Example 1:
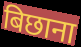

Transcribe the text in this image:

बिछाना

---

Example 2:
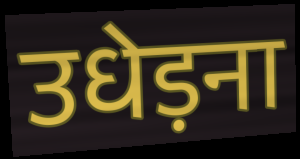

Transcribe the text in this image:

उधेड़ना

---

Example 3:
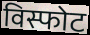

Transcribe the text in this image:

विस्फोट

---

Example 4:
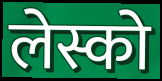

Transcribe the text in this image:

लेस्को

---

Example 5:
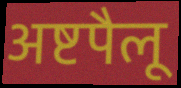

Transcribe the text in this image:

अष्टपैलू